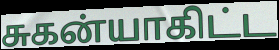
சுகன்யாகிட்ட